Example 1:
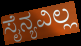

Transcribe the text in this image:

ಸೈನ್ಯವಿಲ್ಲ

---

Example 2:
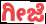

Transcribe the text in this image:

ಗೀಜೆ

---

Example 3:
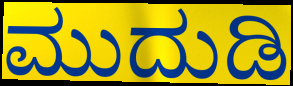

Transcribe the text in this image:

ಮುದುಡಿ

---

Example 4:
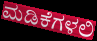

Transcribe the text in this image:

ಮಡಿಕೆಗಳಲಿ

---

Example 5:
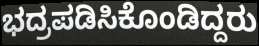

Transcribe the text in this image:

ಭದ್ರಪಡಿಸಿಕೊಂಡಿದ್ದರು